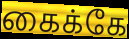
கைக்கே